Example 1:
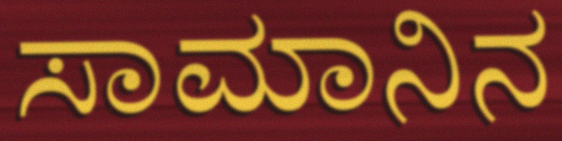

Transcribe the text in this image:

ಸಾಮಾನಿನ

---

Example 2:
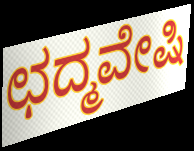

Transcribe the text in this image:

ಛದ್ಮವೇಷಿ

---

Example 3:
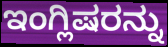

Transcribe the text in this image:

ಇಂಗ್ಲಿಷರನ್ನು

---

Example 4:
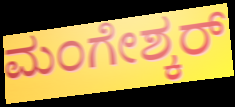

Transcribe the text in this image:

ಮಂಗೇಶ್ಕರ್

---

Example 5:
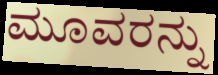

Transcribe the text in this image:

ಮೂವರನ್ನು